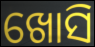
ଖୋସି